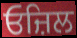
ਓਜ਼ਿਲ